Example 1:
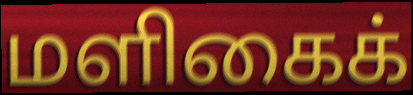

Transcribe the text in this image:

மளிகைக்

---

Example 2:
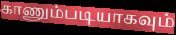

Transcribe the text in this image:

காணும்படியாகவும்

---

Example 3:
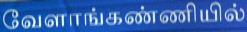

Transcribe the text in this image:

வேளாங்கண்ணியில்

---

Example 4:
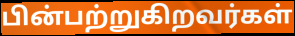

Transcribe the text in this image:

பின்பற்றுகிறவர்கள்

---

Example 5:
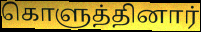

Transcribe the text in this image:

கொளுத்தினார்